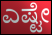
ಎಷ್ಟೇ